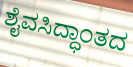
ಶೈವಸಿದ್ಧಾಂತದ